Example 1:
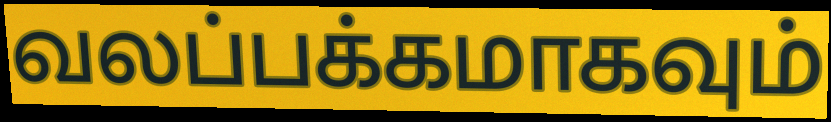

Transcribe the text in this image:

வலப்பக்கமாகவும்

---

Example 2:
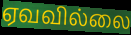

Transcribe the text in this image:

ஏவவில்லை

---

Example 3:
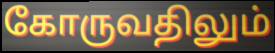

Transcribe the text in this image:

கோருவதிலும்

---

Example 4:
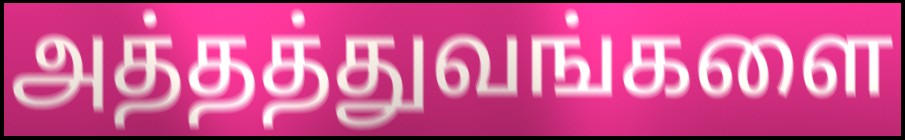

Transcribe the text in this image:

அத்தத்துவங்களை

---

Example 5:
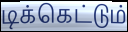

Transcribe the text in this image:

டிக்கெட்டும்